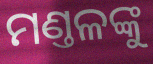
ମଣ୍ତଳଙ୍କୁ